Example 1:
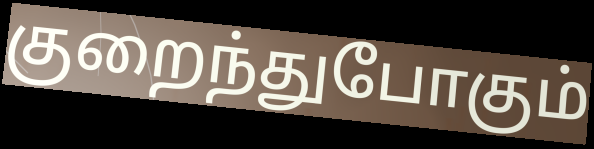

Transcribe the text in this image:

குறைந்துபோகும்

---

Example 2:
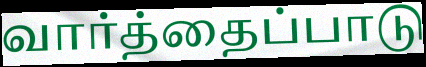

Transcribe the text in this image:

வார்த்தைப்பாடு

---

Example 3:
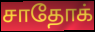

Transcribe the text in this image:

சாதோக்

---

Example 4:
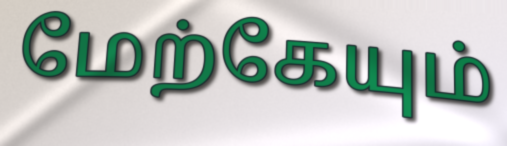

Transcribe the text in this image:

மேற்கேயும்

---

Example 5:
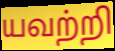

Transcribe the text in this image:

யவற்றி